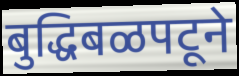
बुद्धिबळपटूने